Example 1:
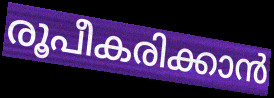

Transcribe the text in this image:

രൂപീകരിക്കാൻ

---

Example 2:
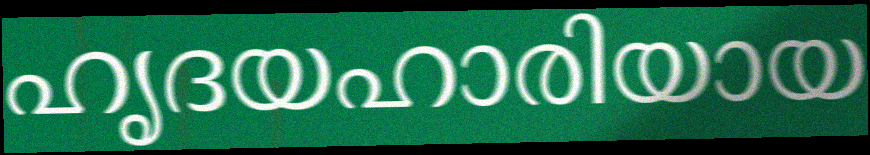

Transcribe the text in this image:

ഹൃദയഹാരിയായ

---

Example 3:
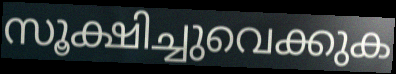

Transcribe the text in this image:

സൂക്ഷിച്ചുവെക്കുക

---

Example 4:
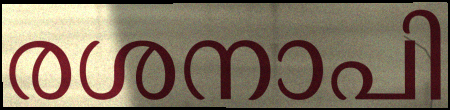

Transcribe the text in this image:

രശനാപി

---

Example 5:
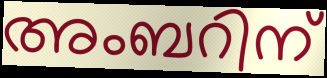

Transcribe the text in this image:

അംബറിന്